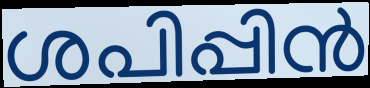
ശപിപ്പിൻ